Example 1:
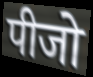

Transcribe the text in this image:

पीजो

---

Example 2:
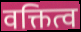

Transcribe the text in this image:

वक्तित्व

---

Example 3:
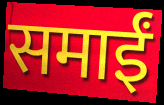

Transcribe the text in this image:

समाईं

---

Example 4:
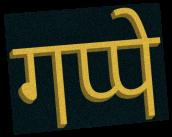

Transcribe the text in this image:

गप्पे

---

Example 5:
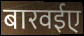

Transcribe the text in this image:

बारवईए